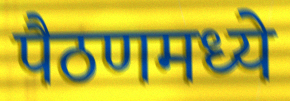
पैठणमध्ये